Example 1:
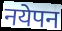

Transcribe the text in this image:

नयेपन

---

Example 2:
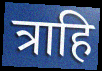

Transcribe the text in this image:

त्राहि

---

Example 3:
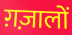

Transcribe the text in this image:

ग़ज़ालों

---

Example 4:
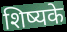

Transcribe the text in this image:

शिष्यके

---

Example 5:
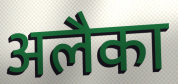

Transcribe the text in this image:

अलैका